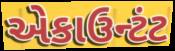
એકાઉન્ટંટ